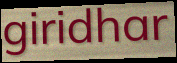
giridhar